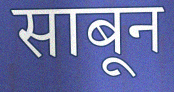
साबून